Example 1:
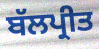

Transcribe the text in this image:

ਬੱਲਪ੍ਰੀਤ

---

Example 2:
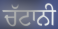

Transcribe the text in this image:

ਚੱਟਾਨੀ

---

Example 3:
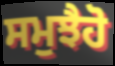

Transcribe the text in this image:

ਸਮੁਝੈਹੋ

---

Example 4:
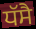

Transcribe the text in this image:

ਧੱਸੈ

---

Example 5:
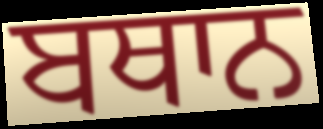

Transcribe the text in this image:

ਬਥਾਨ